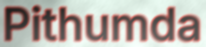
Pithumda